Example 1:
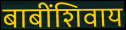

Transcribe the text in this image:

बाबींशिवाय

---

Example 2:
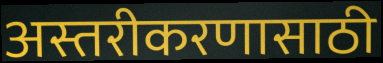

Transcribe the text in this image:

अस्तरीकरणासाठी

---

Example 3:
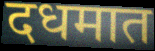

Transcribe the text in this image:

दधमात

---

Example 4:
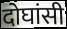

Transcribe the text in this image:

दोघांसी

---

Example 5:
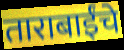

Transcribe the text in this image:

ताराबाईंचे